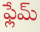
ఫ్లేమ్